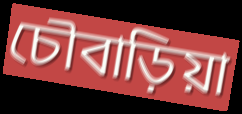
চৌবাড়িয়া